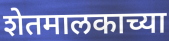
शेतमालकाच्या